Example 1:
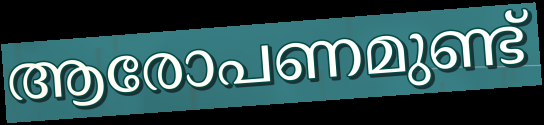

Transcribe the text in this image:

ആരോപണമുണ്ട്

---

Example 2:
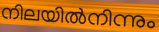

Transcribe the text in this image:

നിലയിൽനിന്നും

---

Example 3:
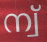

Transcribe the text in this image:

ന്വ്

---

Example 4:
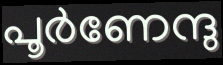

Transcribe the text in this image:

പൂർണേന്ദു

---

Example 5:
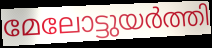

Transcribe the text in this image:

മേലോട്ടുയർത്തി